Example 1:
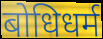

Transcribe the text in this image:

बोधिधर्म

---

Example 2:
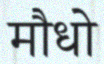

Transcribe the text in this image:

मौधो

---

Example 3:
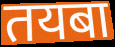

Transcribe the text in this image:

तयबा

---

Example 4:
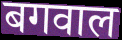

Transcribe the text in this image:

बगवाल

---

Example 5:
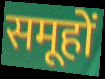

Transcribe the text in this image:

समूहों